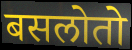
बसलोतो